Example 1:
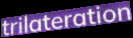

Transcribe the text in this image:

trilateration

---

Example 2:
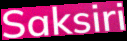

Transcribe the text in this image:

Saksiri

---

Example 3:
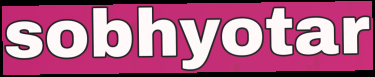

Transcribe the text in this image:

sobhyotar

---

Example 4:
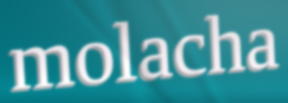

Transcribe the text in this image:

molacha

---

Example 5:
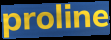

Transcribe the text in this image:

proline